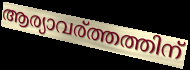
ആര്യാവര്ത്തത്തിന്